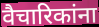
वैचारिकांना